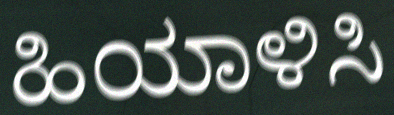
ಹಿಯಾಳಿಸಿ